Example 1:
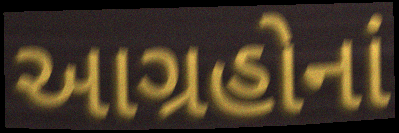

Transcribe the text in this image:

આગ્રહોનાં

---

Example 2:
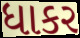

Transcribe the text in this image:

ધાકર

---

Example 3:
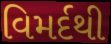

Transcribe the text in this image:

વિમર્દથી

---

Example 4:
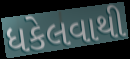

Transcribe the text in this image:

ધકેલવાથી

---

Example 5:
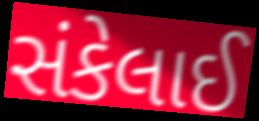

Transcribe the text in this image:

સંકેલાઈ